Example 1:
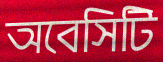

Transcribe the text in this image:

অবেসিটি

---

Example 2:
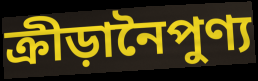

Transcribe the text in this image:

ক্রীড়ানৈপুণ্য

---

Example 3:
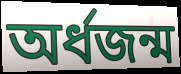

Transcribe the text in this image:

অর্ধজন্ম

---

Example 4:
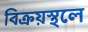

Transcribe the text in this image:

বিক্রয়স্থলে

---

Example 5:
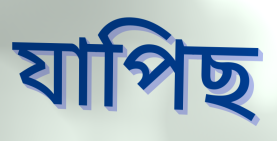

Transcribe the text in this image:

যাপিছ